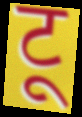
टू